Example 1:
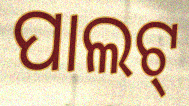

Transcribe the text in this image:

ପାଲଟ୍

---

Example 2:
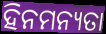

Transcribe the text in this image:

ହିନମନ୍ୟତା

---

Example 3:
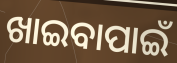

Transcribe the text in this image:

ଖାଇବାପାଇଁ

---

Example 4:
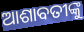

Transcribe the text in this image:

ଆଶାବତୀଙ୍କୁ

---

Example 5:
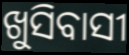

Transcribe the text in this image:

ଖୁସିବାସୀ